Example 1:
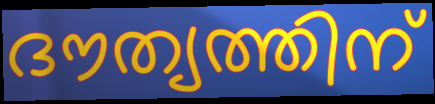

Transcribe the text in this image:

ദൗത്യത്തിന്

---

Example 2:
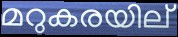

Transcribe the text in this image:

മറുകരയില്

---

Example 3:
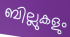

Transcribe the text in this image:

ബില്ലുകളും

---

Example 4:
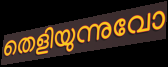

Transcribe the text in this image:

തെളിയുന്നുവോ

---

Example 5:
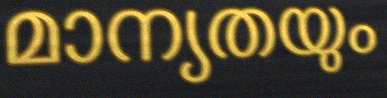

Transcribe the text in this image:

മാന്യതയും